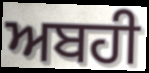
ਅਬਹੀ